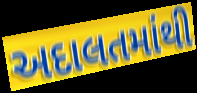
અદાલતમાંથી